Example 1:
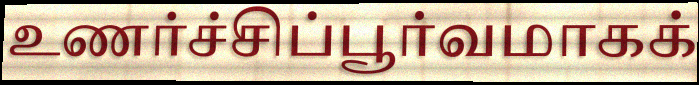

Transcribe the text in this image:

உணர்ச்சிப்பூர்வமாகக்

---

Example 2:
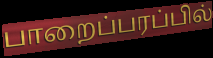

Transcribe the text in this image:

பாறைப்பரப்பில்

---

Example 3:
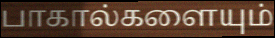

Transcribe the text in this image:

பாகால்களையும்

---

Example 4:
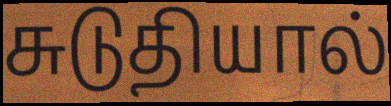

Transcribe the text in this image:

சுடுதியால்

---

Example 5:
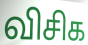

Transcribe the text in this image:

விசிக